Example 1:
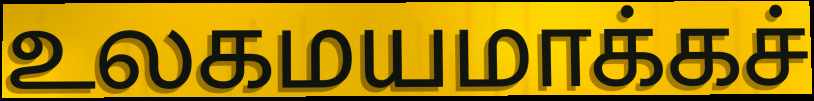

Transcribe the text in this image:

உலகமயமாக்கச்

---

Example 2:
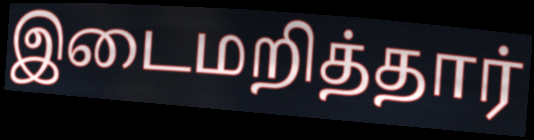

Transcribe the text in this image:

இடைமறித்தார்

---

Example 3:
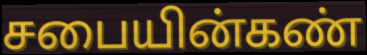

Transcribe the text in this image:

சபையின்கண்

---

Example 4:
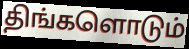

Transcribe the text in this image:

திங்களொடும்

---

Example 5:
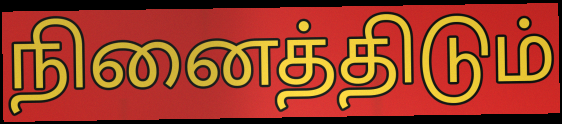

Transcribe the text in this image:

நினைத்திடும்